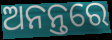
ଅନନ୍ତରେ